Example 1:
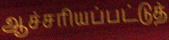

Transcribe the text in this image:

ஆச்சரியப்பட்டுத்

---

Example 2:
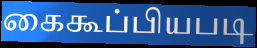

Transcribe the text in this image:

கைகூப்பியபடி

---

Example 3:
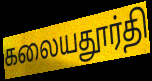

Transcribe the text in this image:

கலையதூர்தி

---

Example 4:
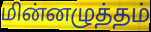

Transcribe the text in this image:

மின்னழுத்தம்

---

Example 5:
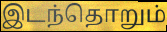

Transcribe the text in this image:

இடந்தொறும்